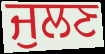
ਜੁਲਣ